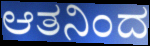
ಆತನಿಂದ